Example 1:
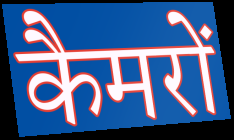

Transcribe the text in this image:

कैमरों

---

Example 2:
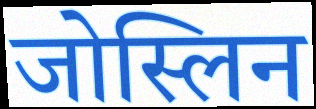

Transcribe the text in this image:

जोस्लिन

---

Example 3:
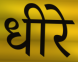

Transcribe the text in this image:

धीरे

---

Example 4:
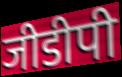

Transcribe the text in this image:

जीडीपी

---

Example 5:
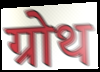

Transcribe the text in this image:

ग्रोथ